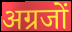
अग्रजों